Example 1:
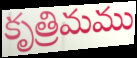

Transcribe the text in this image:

కృత్రిమము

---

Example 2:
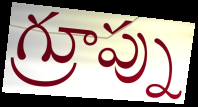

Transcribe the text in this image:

గ్రూప్ను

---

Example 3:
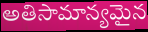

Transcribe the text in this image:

అతిసామాన్యమైన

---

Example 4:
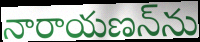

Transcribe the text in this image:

నారాయణన్‌ను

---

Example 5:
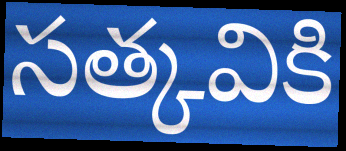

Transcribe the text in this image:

సత్కవికి